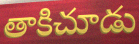
తాకిచూడు